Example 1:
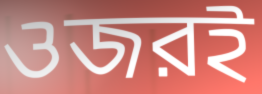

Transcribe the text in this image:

ওজরই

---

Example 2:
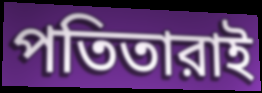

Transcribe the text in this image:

পতিতারাই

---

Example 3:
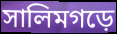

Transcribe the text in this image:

সালিমগড়ে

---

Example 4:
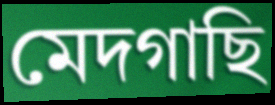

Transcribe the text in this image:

মেদগাছি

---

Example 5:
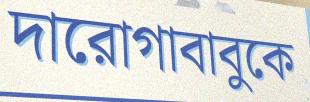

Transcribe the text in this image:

দারোগাবাবুকে